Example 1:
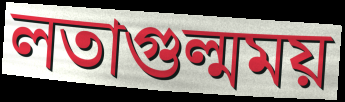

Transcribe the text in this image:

লতাগুল্মময়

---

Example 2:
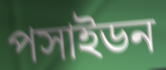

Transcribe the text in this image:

পসাইডন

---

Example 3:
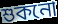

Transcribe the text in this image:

শুকনো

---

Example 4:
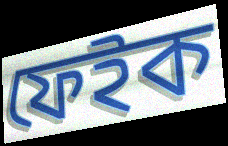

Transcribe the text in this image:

ফেইক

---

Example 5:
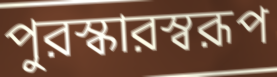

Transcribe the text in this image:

পুরস্কারস্বরূপ